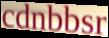
cdnbbsr